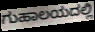
ಗುಹಾಲಯದಲ್ಲಿ